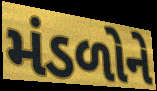
મંડળોને